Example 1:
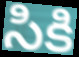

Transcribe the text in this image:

సికి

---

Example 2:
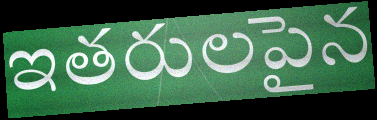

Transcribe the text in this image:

ఇతరులపైన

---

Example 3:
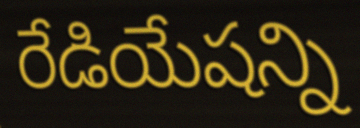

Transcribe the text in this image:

రేడియేషన్ని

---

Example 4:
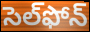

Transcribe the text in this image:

సెల్‌ఫోన్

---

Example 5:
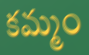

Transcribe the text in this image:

కమ్మం